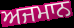
ਅਜਮਾਨ